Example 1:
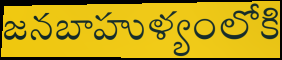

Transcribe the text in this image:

జనబాహుళ్యంలోకి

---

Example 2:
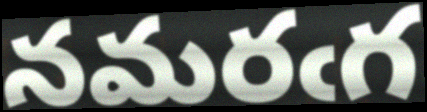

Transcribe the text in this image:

నమరఁగ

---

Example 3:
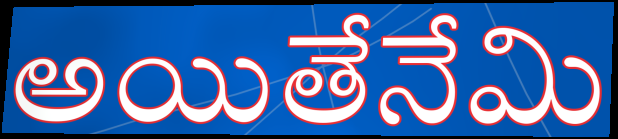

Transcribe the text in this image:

అయితేనేమి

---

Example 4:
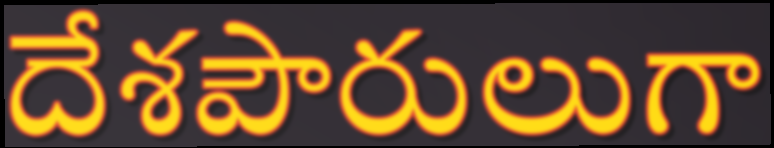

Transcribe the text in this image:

దేశపౌరులుగా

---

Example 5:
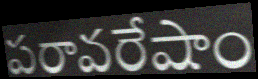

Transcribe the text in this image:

పరావరేషాం